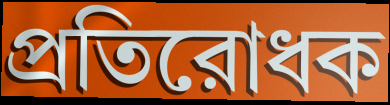
প্রতিরোধক